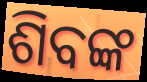
ଶିବଙ୍କ